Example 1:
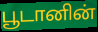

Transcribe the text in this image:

பூடானின்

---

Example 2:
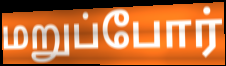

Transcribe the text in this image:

மறுப்போர்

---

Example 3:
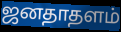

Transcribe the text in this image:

ஜனதாதளம்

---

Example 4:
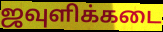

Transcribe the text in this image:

ஜவுளிக்கடை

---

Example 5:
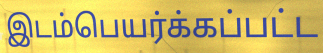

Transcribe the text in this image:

இடம்பெயர்க்கப்பட்ட